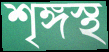
শৃঙ্গস্থ